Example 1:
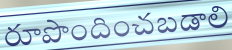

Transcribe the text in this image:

రూపొందించబడాలి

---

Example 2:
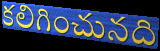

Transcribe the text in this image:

కలిగించునది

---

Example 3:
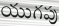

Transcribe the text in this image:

యుగపు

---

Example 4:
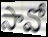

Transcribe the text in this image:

సావో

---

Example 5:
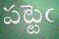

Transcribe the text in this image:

పట్టెఁ